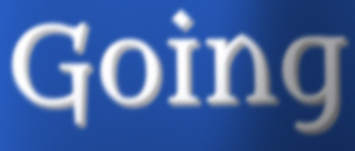
Going